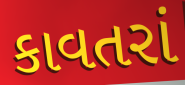
કાવતરાં